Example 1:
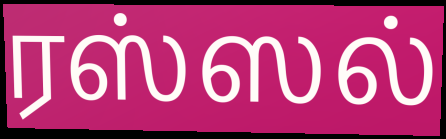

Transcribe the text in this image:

ரஸ்ஸல்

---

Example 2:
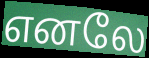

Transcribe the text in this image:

எனலே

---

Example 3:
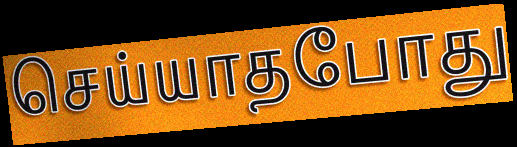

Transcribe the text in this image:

செய்யாதபோது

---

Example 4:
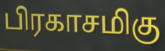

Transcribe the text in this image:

பிரகாசமிகு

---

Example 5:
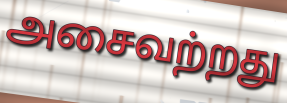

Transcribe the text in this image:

அசைவற்றது